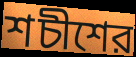
শচীশের